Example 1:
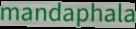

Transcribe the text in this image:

mandaphala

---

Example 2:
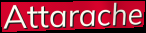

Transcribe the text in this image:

Attarache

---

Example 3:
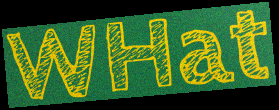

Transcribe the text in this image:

WHat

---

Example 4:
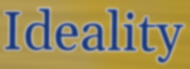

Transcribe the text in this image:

Ideality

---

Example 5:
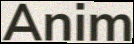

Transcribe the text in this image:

Anim